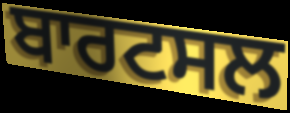
ਬਾਰਟਸਲ